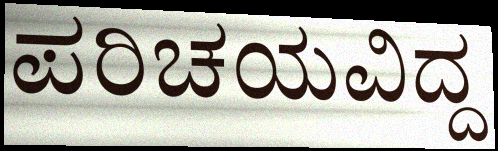
ಪರಿಚಯವಿದ್ದ